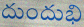
దుందుభి